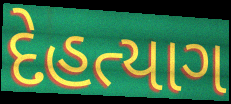
દેહત્યાગ